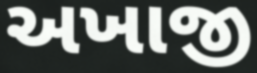
અખાજી